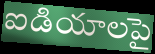
ఐడియాలపై